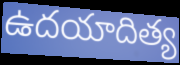
ఉదయాదిత్య